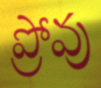
ప్రోవు